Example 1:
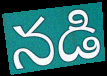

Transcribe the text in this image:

నడి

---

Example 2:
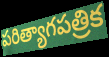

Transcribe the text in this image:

పరిత్యాగపత్రిక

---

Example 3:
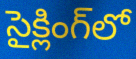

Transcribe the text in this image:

సైక్లింగ్‌లో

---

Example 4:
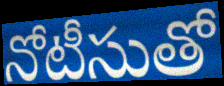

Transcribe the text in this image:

నోటీసుతో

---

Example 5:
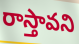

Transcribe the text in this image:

రాస్తావని